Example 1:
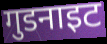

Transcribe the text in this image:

गुडनाइट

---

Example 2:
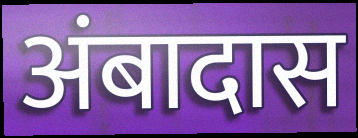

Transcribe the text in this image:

अंबादास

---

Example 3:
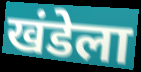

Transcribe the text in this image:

खंडेला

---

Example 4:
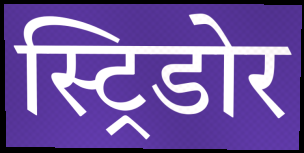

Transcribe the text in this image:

स्ट्रिडोर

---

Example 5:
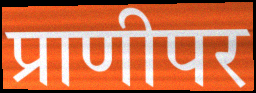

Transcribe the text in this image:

प्राणीपर